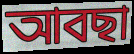
আবছা